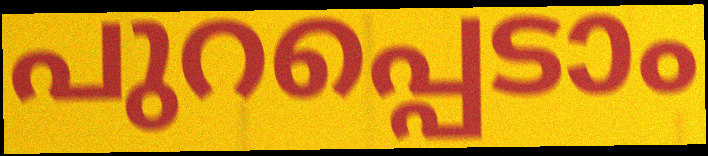
പുറപ്പെടാം